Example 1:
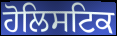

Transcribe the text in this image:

ਹੋਲਿਸਟਿਕ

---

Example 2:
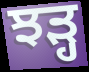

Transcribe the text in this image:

ਝੜ੍ਹ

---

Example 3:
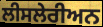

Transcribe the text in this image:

ਲੀਸਲੇਰੀਅਨ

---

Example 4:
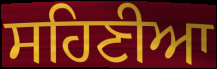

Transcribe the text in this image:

ਸਹਿਣੀਆ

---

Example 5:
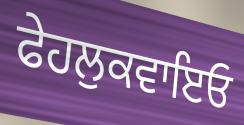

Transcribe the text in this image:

ਫੇਹਲੁਕਵਾਇਓ